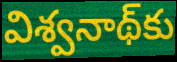
విశ్వనాథ్‌కు